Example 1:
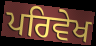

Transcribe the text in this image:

ਪਰਿਵੇਖ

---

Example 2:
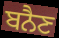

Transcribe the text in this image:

ਬਨੈਣ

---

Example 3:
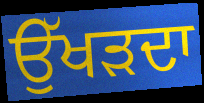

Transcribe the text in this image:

ਉੱਖੜਦਾ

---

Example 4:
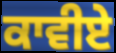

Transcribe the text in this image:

ਕਾਵੀਏ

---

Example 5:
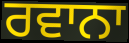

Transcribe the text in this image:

ਰਵਾਨਾ